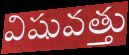
విషువత్తు